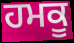
ਹਮਕੂ